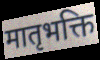
मातृभक्ति